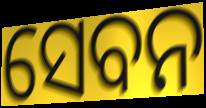
ସେବନ